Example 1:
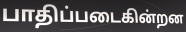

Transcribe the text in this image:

பாதிப்படைகின்றன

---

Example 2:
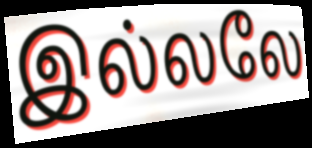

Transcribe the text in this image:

இல்லலே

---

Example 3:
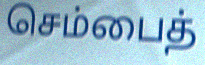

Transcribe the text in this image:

செம்பைத்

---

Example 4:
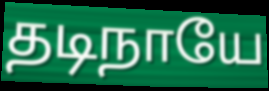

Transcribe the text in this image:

தடிநாயே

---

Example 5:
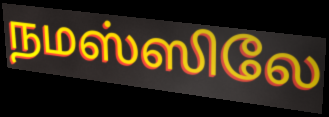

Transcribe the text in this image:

நமஸ்ஸிலே